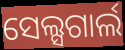
ସେଲ୍ସଗାର୍ଲ